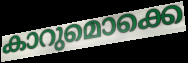
കാറുമൊക്കെ